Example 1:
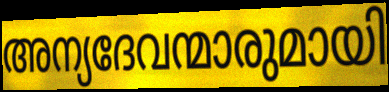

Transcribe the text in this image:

അന്യദേവന്മാരുമായി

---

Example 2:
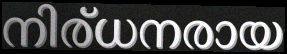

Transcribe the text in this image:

നിര്ധനരായ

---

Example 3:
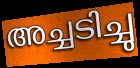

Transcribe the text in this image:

അച്ചടിച്ചു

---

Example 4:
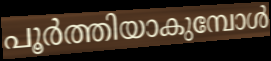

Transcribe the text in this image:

പൂർത്തിയാകുമ്പോൾ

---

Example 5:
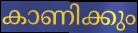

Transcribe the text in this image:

കാണിക്കും